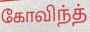
கோவிந்த்